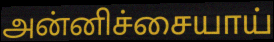
அன்னிச்சையாய்